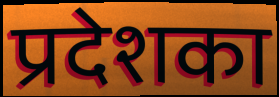
प्रदेशका